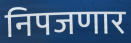
निपजणार